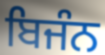
ਬਿਜੰਨ